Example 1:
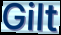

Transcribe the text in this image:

Gilt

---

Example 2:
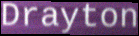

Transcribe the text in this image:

Drayton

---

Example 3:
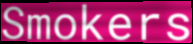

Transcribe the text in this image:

Smokers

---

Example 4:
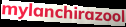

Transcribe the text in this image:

mylanchirazool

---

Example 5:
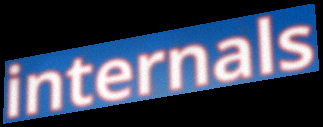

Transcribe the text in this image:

internals